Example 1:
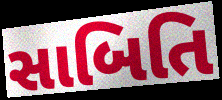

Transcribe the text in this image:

સાબિતિ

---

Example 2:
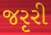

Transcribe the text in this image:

જરૃરી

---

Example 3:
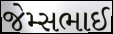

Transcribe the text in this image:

જેમ્સભાઈ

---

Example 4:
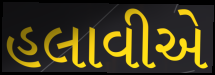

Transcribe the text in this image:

હલાવીએ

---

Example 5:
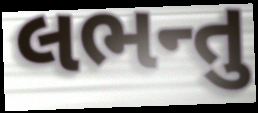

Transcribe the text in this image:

લભન્તુ